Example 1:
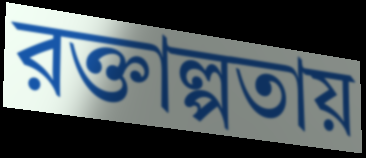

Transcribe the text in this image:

রক্তাল্পতায়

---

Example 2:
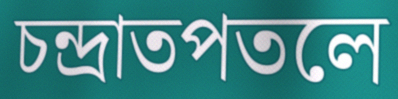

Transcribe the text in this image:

চন্দ্রাতপতলে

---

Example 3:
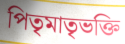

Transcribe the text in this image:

পিতৃমাতৃভক্তি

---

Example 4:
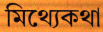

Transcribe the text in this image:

মিথ্যেকথা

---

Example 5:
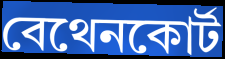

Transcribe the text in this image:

বেথেনকোর্ট